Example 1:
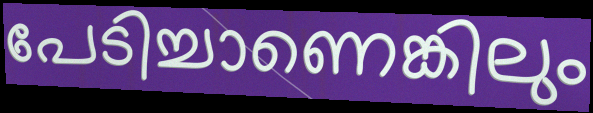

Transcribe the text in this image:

പേടിച്ചാണെങ്കിലും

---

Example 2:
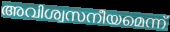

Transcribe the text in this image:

അവിശ്വസനീയമെന്ന്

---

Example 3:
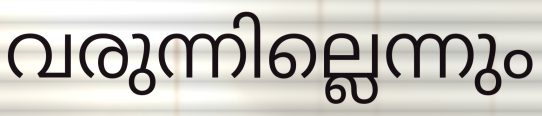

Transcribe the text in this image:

വരുന്നില്ലെന്നും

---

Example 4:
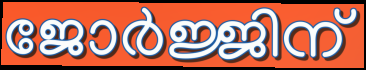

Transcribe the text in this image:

ജോർജ്ജിന്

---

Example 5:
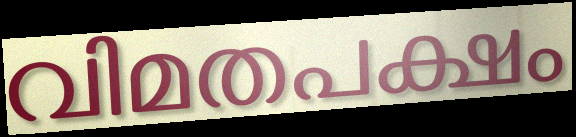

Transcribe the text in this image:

വിമതപക്ഷം